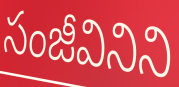
సంజీవినిని